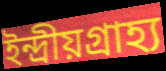
ইন্দ্রীয়গ্রাহ্য